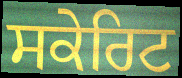
ਸਕੇਰਿਟ